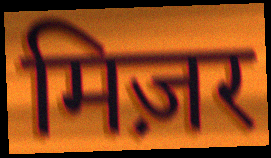
मिज़र